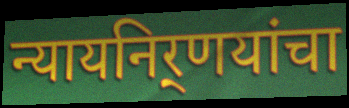
न्यायनिर्णयांचा